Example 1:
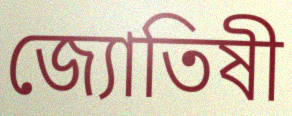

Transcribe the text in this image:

জ্যোতিষী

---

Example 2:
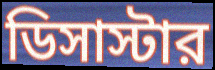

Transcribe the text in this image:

ডিসাস্টার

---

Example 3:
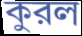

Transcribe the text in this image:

কুরল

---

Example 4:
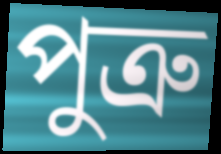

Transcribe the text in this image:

পুত্রু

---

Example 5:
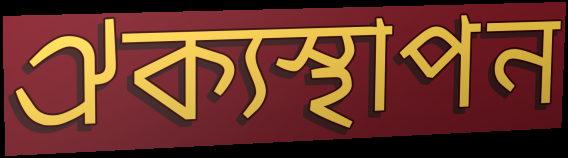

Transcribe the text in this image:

ঐক্যস্থাপন